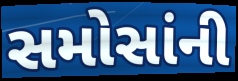
સમોસાંની